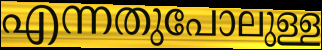
എന്നതുപോലുള്ള